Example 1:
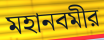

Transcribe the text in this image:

মহানবমীর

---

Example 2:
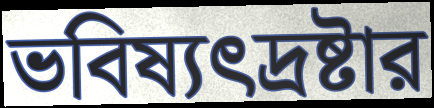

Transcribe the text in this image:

ভবিষ্যৎদ্রষ্টার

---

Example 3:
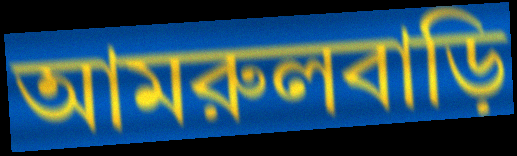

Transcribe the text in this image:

আমরুলবাড়ি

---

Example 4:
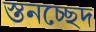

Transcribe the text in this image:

স্তনচ্ছেদ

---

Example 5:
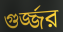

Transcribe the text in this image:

গুর্জ্জর